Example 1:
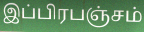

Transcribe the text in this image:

இப்பிரபஞ்சம்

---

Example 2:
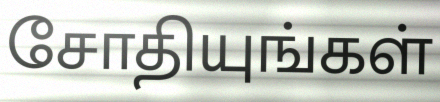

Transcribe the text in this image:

சோதியுங்கள்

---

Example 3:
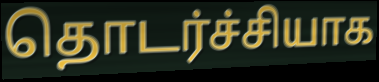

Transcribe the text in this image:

தொடர்ச்சியாக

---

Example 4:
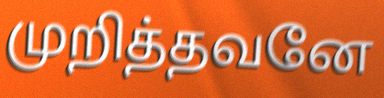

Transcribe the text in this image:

முறித்தவனே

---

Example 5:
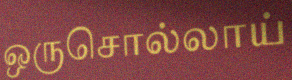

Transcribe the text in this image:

ஒருசொல்லாய்